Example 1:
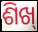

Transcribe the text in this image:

ଶିଖ୍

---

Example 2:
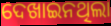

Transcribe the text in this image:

ଦେଖାଇନଥିଲା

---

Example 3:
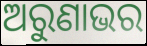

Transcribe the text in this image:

ଅରୁଣାଭର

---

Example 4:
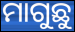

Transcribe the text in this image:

ମାଗୁଛୁ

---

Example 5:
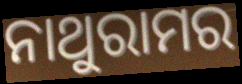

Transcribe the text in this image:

ନାଥୁରାମର